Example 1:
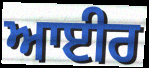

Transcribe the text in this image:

ਆਈਰ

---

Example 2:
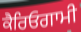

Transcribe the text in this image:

ਕੈਰਿਓਗਾਮੀ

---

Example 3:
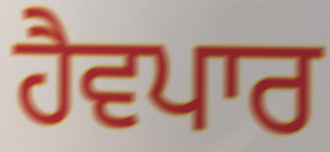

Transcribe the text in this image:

ਹੈਵਪਾਰ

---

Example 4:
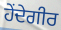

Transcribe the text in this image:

ਹੇਂਦੇਗੀਰ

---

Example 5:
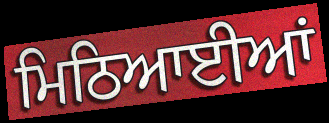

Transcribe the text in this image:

ਮਿਠਿਆਈਆਂ